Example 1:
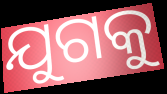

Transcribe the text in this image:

ଯୁଗକୁ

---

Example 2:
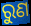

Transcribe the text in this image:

ରୁଣ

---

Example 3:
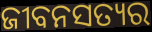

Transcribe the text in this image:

ଜୀବନସତ୍ୟର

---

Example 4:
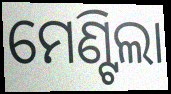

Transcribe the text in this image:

ମେଣ୍ଟିଲା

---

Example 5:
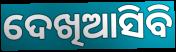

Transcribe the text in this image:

ଦେଖିଆସିବି